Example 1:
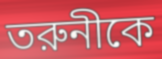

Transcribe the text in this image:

তরুনীকে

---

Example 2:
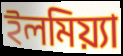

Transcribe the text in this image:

ইলমিয়্যা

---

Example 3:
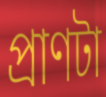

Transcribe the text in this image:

প্রাণটা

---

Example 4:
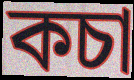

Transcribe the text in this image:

কচা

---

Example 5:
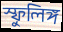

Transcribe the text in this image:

স্ফুলিঙ্গ